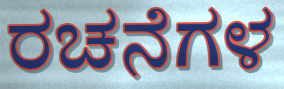
ರಚನೆಗಳ